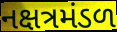
નક્ષત્રમંડળ